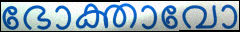
ഭോക്താവോ